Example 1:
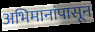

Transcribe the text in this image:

अभिमानांपासून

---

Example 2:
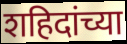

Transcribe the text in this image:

शहिदांच्या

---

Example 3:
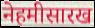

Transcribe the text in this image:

नेहमीसारख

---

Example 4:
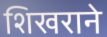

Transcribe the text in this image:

शिखराने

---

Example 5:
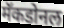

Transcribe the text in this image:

मॅकडोनल